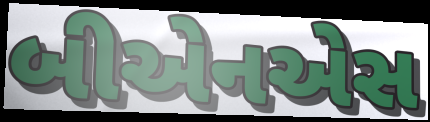
બીએનએસ